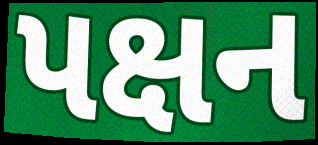
પક્ષન